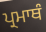
ਪ੍ਰਮਾਥੰ